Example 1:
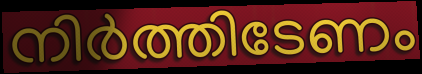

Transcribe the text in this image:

നിർത്തിടേണം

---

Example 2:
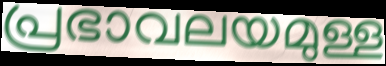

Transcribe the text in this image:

പ്രഭാവലയമുള്ള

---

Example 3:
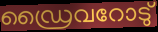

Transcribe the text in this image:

ഡ്രൈവറോടു്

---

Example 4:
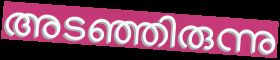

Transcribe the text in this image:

അടഞ്ഞിരുന്നു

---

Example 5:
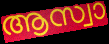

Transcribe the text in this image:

ആസ്വാ